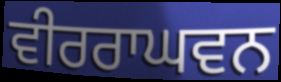
ਵੀਰਰਾਘਵਨ